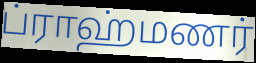
ப்ராஹ்மணர்